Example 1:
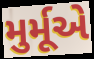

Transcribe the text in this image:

મુર્મૂએ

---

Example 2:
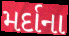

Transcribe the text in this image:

મર્દાના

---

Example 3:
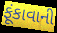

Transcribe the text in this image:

ફૂંકાવાની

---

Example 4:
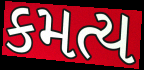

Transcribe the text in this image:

કમત્ય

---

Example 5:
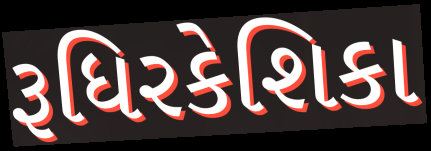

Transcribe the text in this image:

રૂધિરકેશિકા